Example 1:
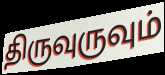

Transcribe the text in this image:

திருவுருவும்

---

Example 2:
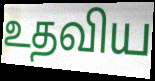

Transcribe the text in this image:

உதவிய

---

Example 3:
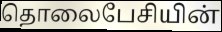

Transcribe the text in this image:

தொலைபேசியின்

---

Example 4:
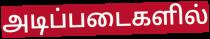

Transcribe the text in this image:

அடிப்படைகளில்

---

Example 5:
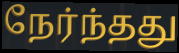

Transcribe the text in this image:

நேர்ந்தது